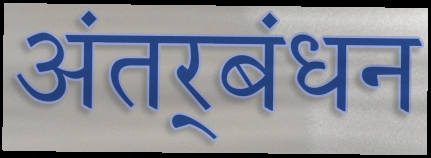
अंतर्बंधन